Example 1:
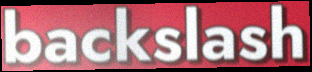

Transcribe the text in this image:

backslash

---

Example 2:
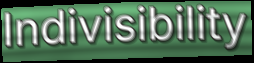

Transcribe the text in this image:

Indivisibility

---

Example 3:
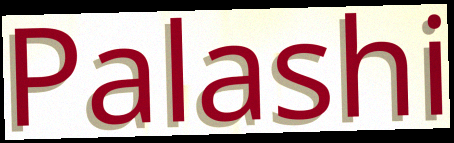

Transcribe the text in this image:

Palashi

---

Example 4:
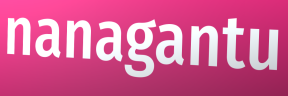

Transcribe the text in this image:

nanagantu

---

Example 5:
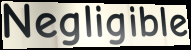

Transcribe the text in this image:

Negligible